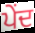
ਪੇਂਦ